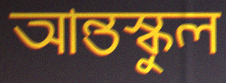
আন্তস্কুল